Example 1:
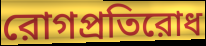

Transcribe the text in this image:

রোগপ্রতিরোধ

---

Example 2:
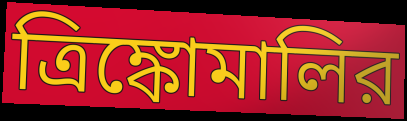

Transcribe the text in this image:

ত্রিঙ্কোমালির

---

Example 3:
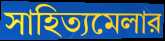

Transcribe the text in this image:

সাহিত্যমেলার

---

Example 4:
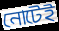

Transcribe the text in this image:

নোটেই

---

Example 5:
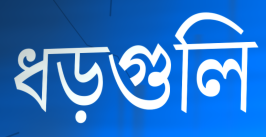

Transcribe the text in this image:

ধড়গুলি